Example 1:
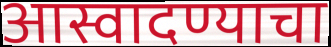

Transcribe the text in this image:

आस्वादण्याचा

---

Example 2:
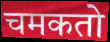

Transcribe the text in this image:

चमकतो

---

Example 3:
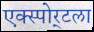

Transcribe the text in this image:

एक्स्पोर्टला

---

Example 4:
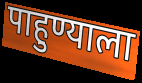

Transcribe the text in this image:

पाहुण्याला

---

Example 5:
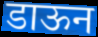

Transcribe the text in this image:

डाऊन